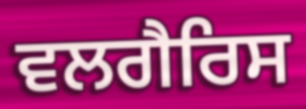
ਵਲਗੈਰਿਸ